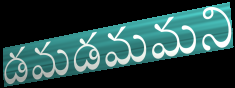
డమడమమని